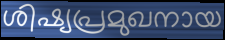
ശിഷ്യപ്രമുഖനായ